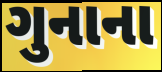
ગુનાના